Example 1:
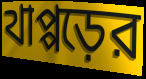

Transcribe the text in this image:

থাপ্পড়ের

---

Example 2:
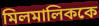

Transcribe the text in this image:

মিলমালিককে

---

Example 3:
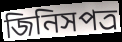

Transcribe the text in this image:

জিনিসপত্র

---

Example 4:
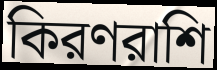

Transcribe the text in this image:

কিরণরাশি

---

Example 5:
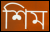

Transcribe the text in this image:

শিম